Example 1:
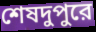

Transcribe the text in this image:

শেষদুপুরে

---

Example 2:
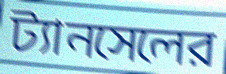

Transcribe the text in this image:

ট্যানসেলের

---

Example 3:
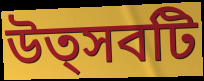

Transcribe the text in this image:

উত্সবটি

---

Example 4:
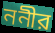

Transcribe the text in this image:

ননীর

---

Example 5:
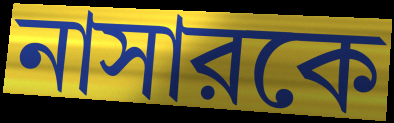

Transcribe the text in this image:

নাসারকে